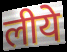
लीये